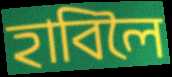
হাবিলৈ